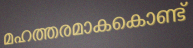
മഹത്തരമാകകൊണ്ട്